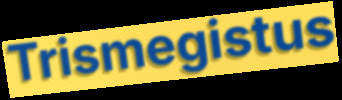
Trismegistus